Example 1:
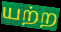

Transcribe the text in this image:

யற்ற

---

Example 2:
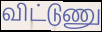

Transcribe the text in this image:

விட்டுணு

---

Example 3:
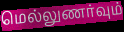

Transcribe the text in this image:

மெல்லுணர்வும்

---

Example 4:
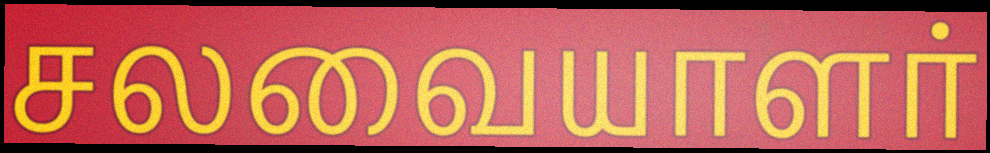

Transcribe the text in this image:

சலவையாளர்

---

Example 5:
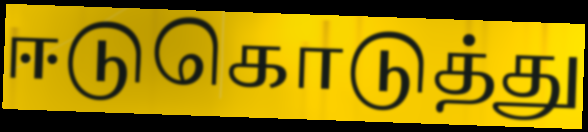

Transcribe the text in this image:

ஈடுகொடுத்து